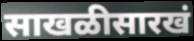
साखळीसारखं